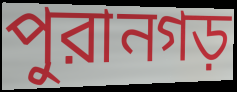
পুরানগড়